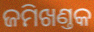
ଜମିଖଣ୍ତକ